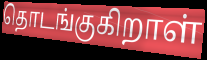
தொடங்குகிறாள்